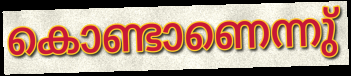
കൊണ്ടാണെന്നു്